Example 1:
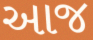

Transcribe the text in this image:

આજ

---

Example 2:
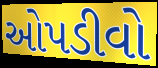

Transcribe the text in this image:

ઓપડીવો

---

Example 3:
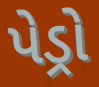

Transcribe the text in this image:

પેડ્રો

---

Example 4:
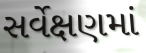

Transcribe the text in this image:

સર્વેક્ષણમાં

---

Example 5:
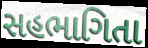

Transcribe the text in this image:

સહભાગિતા